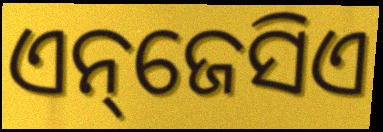
ଏନ୍‌ଜେସିଏ